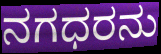
ನಗಧರನು